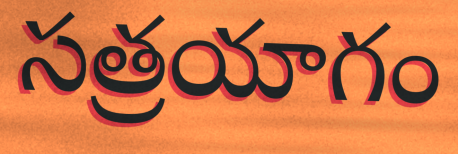
సత్రయాగం